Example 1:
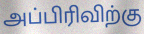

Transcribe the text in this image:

அப்பிரிவிற்கு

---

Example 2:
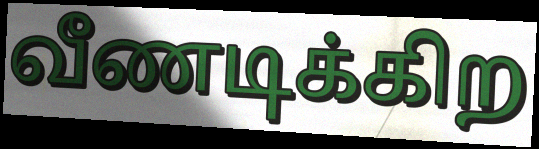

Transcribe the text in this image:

வீணடிக்கிற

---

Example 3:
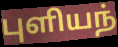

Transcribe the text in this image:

புளியந்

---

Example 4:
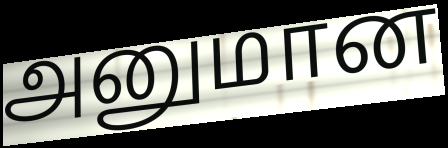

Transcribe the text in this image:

அனுமான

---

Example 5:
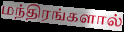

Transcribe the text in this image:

மந்திரங்களால்